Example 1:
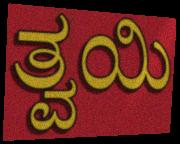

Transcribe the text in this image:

ತ್ವಯಿ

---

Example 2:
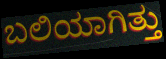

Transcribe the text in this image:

ಬಲಿಯಾಗಿತ್ತು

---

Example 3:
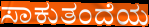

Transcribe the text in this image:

ಸಾಕುತಂದೆಯ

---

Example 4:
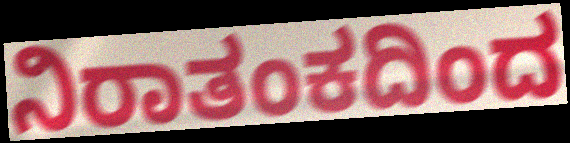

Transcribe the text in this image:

ನಿರಾತಂಕದಿಂದ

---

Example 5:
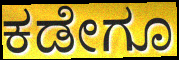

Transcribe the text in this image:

ಕಡೇಗೂ